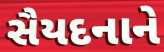
સૈયદનાને